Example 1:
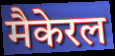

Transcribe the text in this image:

मैकेरल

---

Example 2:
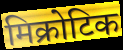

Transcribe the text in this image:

मिक्रोटिक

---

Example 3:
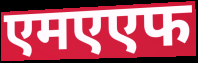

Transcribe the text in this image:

एमएएफ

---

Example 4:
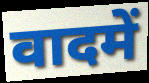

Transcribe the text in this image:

वादमें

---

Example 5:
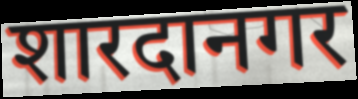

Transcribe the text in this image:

शारदानगर